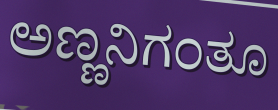
ಅಣ್ಣನಿಗಂತೂ